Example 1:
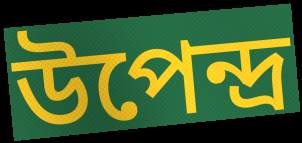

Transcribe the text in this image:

উপেন্দ্র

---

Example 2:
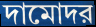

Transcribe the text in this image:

দামোদর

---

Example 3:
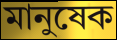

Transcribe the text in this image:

মানুষেক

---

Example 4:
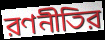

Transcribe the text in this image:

রণনীতির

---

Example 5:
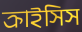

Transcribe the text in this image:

ক্রাইসিস